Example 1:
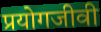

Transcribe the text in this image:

प्रयोगजीवी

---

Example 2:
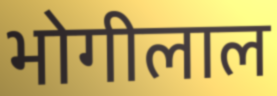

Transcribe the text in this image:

भोगीलाल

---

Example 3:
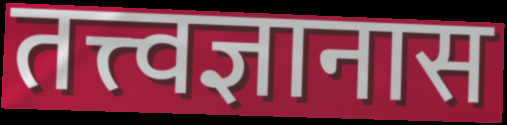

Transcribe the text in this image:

तत्त्वज्ञानास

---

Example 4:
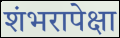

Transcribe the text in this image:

शंभरापेक्षा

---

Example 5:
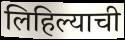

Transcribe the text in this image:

लिहिल्याची